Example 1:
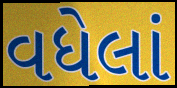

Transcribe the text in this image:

વધેલાં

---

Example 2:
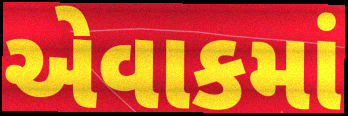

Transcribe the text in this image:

એવાકમાં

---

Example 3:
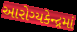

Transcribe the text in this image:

આરોગ્યકેન્દ્રમાં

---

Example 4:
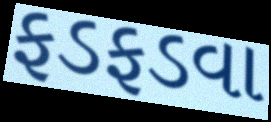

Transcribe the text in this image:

ફડફડવા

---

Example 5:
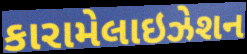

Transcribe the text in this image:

કારામેલાઇઝેશન